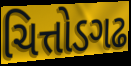
ચિત્તોડગઢ